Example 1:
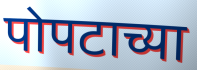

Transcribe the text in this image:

पोपटाच्या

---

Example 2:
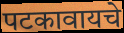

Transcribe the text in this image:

पटकावायचे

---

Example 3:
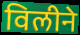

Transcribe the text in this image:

विलीने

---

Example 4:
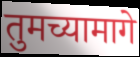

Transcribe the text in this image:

तुमच्यामागे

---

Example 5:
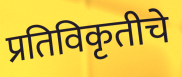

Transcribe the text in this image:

प्रतिविकृतीचे